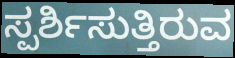
ಸ್ಪರ್ಶಿಸುತ್ತಿರುವ